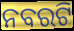
ନବରଟି